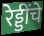
रेड्डींचे